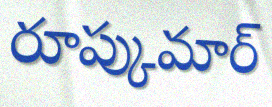
రూప్కుమార్